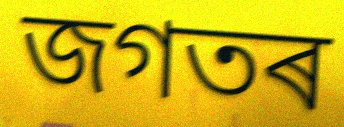
জগতৰ